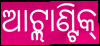
ଆଟ୍ଲାଣ୍ଟିକ୍